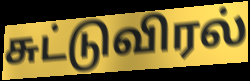
சுட்டுவிரல்